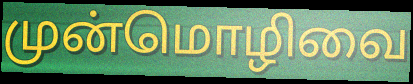
முன்மொழிவை